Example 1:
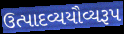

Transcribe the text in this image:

ઉત્પાદવ્યયૌવ્યરૂપ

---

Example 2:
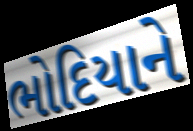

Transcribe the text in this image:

ભોદિયાને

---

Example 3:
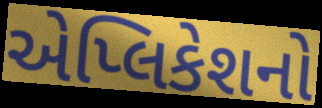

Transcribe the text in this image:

એપ્લિકેશનો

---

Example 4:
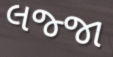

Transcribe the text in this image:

લજ્જા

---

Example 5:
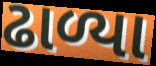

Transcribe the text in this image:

ઢાળ્યા